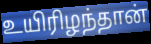
உயிரிழந்தான்